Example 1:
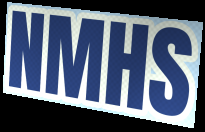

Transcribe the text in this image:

NMHS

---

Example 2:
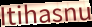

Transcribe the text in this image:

Itihasnu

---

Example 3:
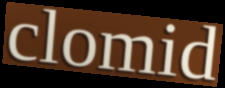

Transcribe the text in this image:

clomid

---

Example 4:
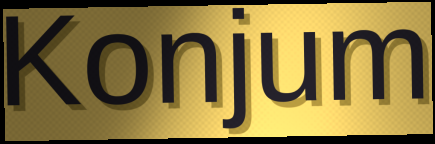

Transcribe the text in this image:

Konjum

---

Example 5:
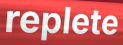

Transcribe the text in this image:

replete